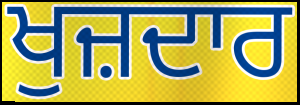
ਖੁਜ਼ਦਾਰ